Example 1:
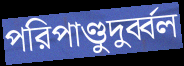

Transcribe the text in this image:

পরিপাণ্ডুদুর্ব্বল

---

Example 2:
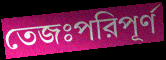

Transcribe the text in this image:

তেজঃপরিপূর্ণ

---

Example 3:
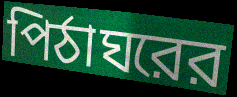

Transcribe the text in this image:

পিঠাঘরের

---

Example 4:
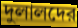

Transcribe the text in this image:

দুলালদের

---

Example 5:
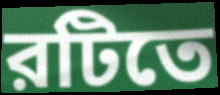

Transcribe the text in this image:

রটিতে